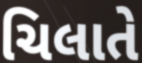
ચિલાતે